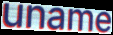
uname